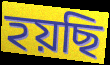
হয়ছি